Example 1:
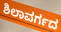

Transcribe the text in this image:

ಶಿಲಾವರ್ಗದ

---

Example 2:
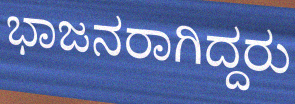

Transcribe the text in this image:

ಭಾಜನರಾಗಿದ್ದರು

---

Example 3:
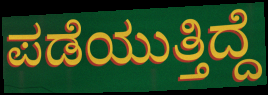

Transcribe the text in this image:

ಪಡೆಯುತ್ತಿದ್ದೆ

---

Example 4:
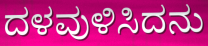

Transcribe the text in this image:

ದಳವುಳಿಸಿದನು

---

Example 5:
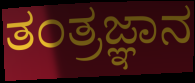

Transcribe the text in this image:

ತಂತ್ರಜ್ಞಾನ